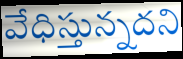
వేధిస్తున్నదని